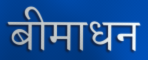
बीमाधन